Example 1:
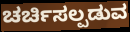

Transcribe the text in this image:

ಚರ್ಚಿಸಲ್ಪಡುವ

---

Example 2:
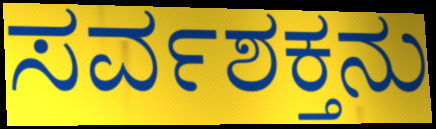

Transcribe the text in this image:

ಸರ್ವಶಕ್ತನು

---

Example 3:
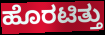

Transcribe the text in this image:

ಹೊರಟಿತ್ತು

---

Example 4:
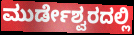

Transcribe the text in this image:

ಮುರ್ಡೇಶ್ವರದಲ್ಲಿ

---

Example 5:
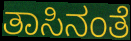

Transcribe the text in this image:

ತಾಸಿನಂತೆ